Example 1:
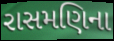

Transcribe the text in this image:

રાસમણિના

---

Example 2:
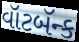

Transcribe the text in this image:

વૉટબૅન્ક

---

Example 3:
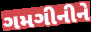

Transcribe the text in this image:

ગમગીનીને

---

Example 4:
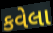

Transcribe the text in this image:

કવેલા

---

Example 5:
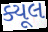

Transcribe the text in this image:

ક્યૂલ